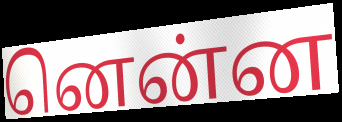
னென்ன